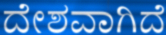
ದೇಶವಾಗಿದೆ